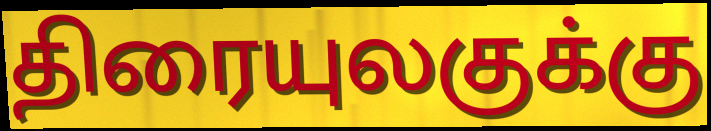
திரையுலகுக்கு